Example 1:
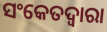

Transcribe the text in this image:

ସଂକେତଦ୍ଵାରା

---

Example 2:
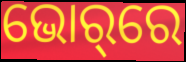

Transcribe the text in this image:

ଭୋର୍‌ରେ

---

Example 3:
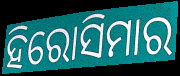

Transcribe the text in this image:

ହିରୋସିମାର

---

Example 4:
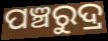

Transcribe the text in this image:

ପଞ୍ଚରୁଦ୍ର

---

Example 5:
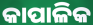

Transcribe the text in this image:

କାପାଳିକ